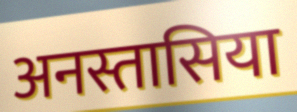
अनस्तासिया